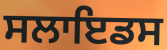
ਸਲਾਇਡਸ